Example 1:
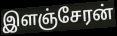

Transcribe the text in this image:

இளஞ்சேரன்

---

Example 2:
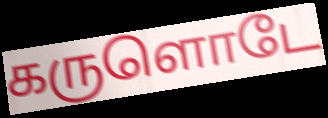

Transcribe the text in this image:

கருளொடே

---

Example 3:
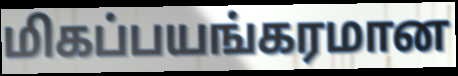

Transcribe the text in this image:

மிகப்பயங்கரமான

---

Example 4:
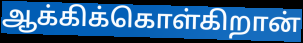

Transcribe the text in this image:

ஆக்கிக்கொள்கிறான்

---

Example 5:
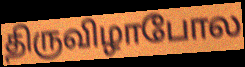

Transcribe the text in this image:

திருவிழாபோல